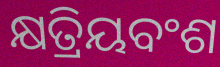
କ୍ଷତ୍ରିୟବଂଶ